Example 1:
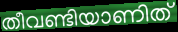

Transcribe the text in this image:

തീവണ്ടിയാണിത്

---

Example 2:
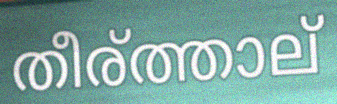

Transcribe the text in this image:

തീര്ത്താല്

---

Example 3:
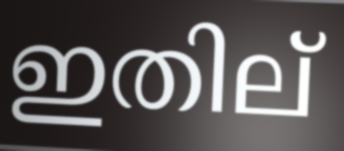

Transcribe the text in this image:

ഇതില്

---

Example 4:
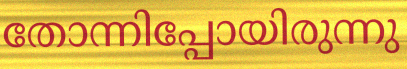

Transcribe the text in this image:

തോന്നിപ്പോയിരുന്നു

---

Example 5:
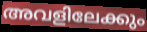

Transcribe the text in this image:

അവളിലേക്കും